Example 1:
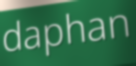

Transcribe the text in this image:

daphan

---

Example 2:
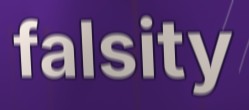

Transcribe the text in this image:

falsity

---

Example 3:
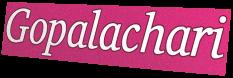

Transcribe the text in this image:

Gopalachari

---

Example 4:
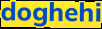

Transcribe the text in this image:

doghehi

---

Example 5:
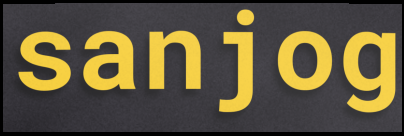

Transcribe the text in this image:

sanjog